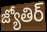
జ్యోతిర్